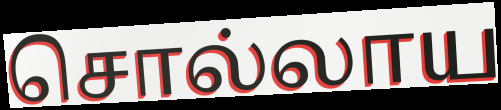
சொல்லாய